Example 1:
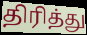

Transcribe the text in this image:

திரித்து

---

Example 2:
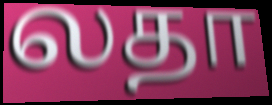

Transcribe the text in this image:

லதா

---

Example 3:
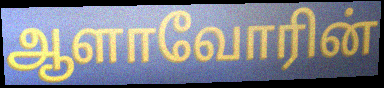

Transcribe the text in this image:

ஆளாவோரின்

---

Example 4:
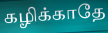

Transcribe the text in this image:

கழிக்காதே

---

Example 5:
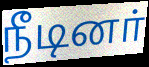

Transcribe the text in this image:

நீடினர்